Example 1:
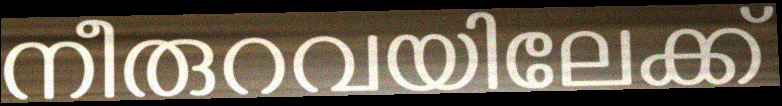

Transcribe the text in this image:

നീരുറവയിലേക്ക്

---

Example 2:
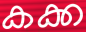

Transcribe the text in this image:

കക്ക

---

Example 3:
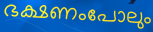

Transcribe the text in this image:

ഭക്ഷണംപോലും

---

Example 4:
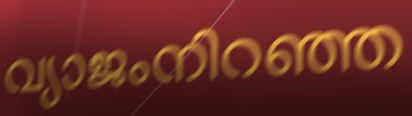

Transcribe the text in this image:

വ്യാജംനിറഞ്ഞ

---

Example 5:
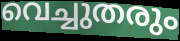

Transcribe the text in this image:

വെച്ചുതരും